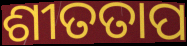
ଶୀତତାପ